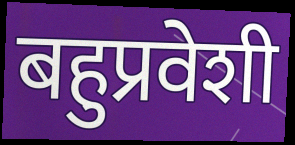
बहुप्रवेशी